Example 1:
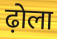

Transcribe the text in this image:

ढ़ोला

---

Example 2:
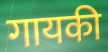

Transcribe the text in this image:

गायकी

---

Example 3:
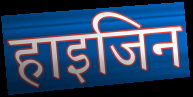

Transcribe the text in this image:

हाइजिन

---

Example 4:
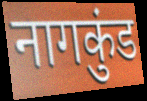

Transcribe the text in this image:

नागकुंड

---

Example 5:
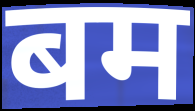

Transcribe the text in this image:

बम